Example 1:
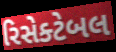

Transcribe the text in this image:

રિસેક્ટેબલ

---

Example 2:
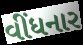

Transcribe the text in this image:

વીંધનાર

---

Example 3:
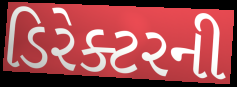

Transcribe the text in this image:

ડિરેક્ટરની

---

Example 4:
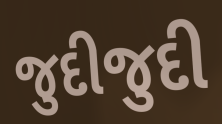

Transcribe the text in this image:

જુદીજુદી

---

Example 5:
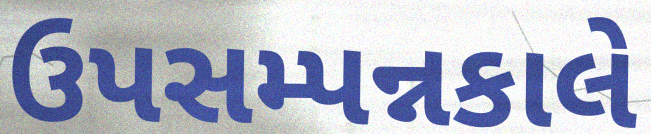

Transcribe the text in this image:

ઉપસમ્પન્નકાલે